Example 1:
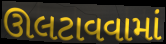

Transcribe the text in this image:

ઊલટાવવામાં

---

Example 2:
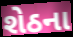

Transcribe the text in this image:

શેઠના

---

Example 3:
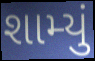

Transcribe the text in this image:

શામ્યું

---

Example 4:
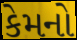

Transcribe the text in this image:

કેમનો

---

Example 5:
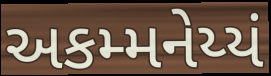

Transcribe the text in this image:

અકમ્મનેય્યં